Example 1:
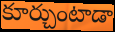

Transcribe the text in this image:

కూర్చుంటాడా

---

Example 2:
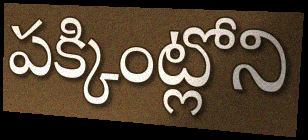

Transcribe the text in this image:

పక్కింట్లోని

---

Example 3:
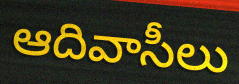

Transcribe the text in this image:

ఆదివాసీలు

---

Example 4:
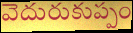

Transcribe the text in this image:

వెదురుకుప్పం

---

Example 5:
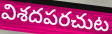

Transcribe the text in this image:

విశదపరచుట